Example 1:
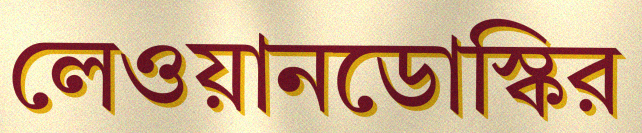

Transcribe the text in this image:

লেওয়ানডোস্কির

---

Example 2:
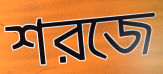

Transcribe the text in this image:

শরজে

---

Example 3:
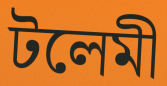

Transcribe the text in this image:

টলেমী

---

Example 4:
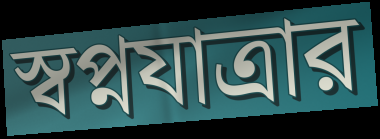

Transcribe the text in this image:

স্বপ্নযাত্রার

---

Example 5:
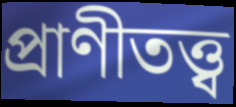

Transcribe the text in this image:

প্রাণীতত্ত্ব